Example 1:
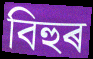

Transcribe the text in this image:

বিহুৰ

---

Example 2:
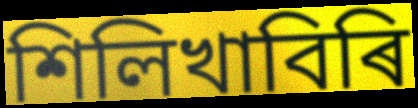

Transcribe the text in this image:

শিলিখাবিৰি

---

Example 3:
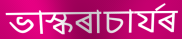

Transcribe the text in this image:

ভাস্কৰাচাৰ্যৰ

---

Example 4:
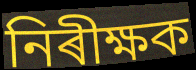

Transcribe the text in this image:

নিৰীক্ষক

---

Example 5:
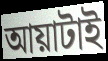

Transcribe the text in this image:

আয়াটাই